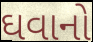
ઘવાનો